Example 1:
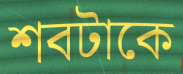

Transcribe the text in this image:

শবটাকে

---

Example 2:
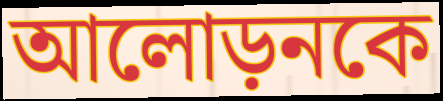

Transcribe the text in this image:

আলোড়নকে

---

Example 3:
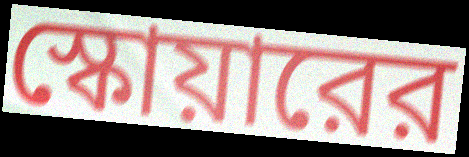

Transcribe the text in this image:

স্কোয়ারের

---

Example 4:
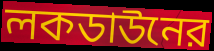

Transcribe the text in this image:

লকডাউনের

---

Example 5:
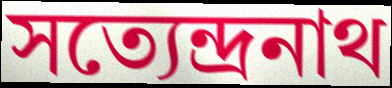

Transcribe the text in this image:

সত্যেন্দ্রনাথ